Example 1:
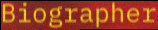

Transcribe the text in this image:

Biographer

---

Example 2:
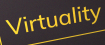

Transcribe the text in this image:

Virtuality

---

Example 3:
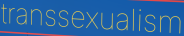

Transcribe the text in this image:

transsexualism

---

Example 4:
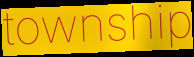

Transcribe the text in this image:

township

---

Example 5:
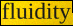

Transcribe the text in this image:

fluidity